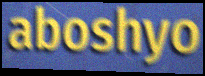
aboshyo